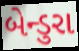
બેન્ડુરા